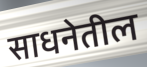
साधनेतील